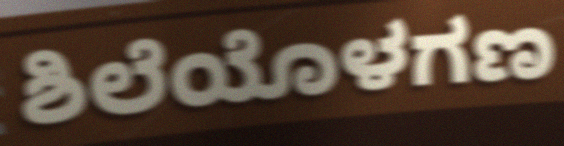
ಶಿಲೆಯೊಳಗಣ